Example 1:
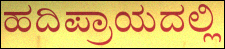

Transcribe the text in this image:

ಹದಿಪ್ರಾಯದಲ್ಲಿ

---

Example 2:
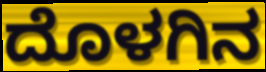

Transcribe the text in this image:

ದೊಳಗಿನ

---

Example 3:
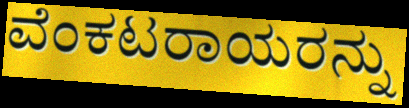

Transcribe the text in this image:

ವೆಂಕಟರಾಯರನ್ನು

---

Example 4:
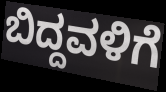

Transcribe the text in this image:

ಬಿದ್ದವಳಿಗೆ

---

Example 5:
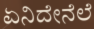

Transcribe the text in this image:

ಏನಿದೇನೆಲೆ